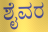
ಶೈವರ